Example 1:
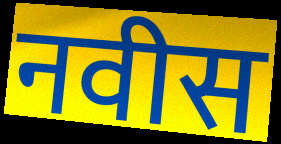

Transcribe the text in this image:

नवीस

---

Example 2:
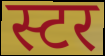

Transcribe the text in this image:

स्टर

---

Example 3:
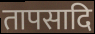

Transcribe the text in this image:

तापसादि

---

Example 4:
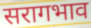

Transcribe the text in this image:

सरागभाव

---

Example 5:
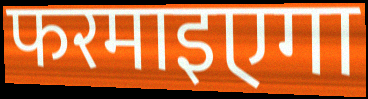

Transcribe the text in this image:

फरमाइएगा